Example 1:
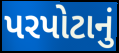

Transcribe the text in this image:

પરપોટાનું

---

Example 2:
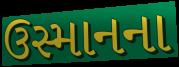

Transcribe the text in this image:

ઉસ્માનના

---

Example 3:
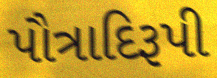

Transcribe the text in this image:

પૌત્રાદિરૂપી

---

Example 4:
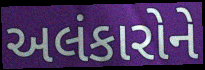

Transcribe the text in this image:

અલંકારોને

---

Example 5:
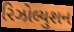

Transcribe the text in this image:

રિઝોલ્યુશન